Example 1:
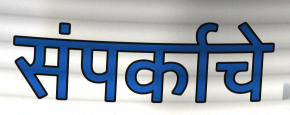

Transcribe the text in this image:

संपर्काचे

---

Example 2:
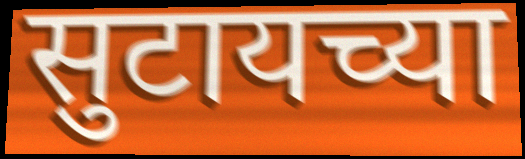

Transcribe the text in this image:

सुटायच्या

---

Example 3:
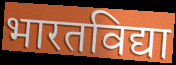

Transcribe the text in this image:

भारतविद्या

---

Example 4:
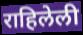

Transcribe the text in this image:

राहिलेली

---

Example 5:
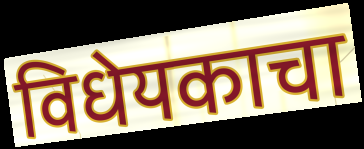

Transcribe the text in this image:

विधेयकाचा